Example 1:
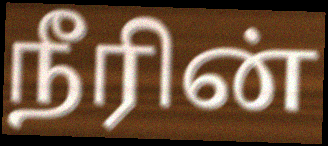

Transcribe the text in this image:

நீரின்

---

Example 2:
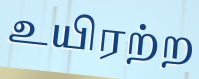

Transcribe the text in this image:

உயிரற்ற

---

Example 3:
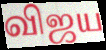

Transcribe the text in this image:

விஜய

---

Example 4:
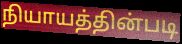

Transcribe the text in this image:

நியாயத்தின்படி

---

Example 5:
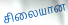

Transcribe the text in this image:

சிலையான